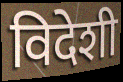
विदेशी